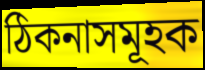
ঠিকনাসমূহক